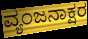
ವ್ಯಂಜನಾಕ್ಷರ